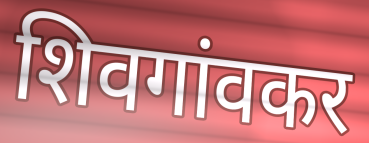
शिवगांवकर